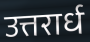
उत्तरार्ध